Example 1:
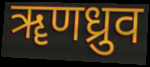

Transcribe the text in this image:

ॠणध्रुव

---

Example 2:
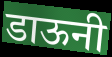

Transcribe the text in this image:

डाऊनी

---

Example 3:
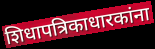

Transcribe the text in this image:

शिधापत्रिकाधारकांना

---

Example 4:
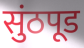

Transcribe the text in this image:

सुंठपूड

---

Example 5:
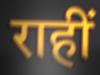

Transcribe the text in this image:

राहीं